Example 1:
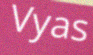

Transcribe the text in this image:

Vyas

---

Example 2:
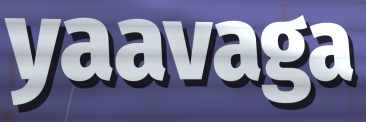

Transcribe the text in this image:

yaavaga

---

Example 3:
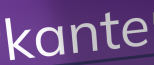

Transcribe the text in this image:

kante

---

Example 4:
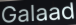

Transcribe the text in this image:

Galaad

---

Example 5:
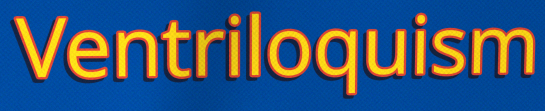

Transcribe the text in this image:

Ventriloquism